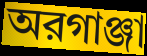
অরগাঞ্জা